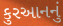
કુરઆનનું